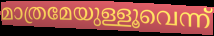
മാത്രമേയുള്ളൂവെന്ന്